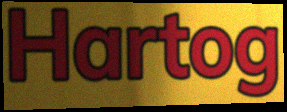
Hartog